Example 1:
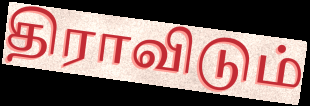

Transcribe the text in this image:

திராவிடும்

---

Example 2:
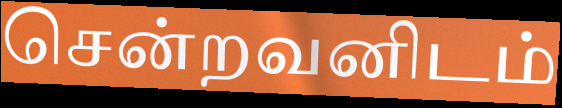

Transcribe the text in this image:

சென்றவனிடம்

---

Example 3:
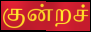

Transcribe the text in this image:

குன்றச்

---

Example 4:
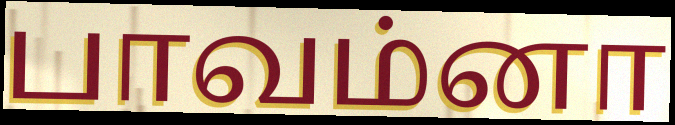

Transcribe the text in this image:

பாவம்னா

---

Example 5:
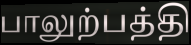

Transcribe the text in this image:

பாலுற்பத்தி